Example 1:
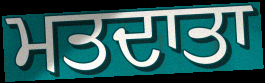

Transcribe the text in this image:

ਮਤਦਾਤਾ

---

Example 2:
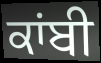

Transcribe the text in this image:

ਕਾਂਬੀ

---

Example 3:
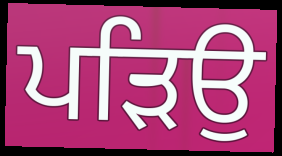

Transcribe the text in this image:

ਪੜਿਉ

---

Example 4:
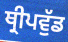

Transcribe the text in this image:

ਥ੍ਰੀਪਵੁੱਡ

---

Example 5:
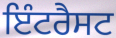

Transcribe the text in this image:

ਇੰਟਰੈਸਟ